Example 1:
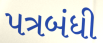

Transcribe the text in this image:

પત્રબંધી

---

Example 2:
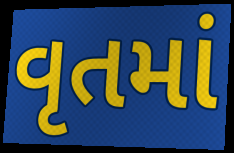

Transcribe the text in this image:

વૃતમાં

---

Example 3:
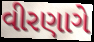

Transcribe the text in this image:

વીરણાગે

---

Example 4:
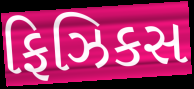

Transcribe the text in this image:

ફિઝિકસ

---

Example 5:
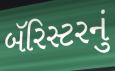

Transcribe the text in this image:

બૅરિસ્ટરનું